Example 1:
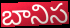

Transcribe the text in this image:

బానిస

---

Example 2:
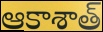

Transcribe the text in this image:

ఆకాశాత్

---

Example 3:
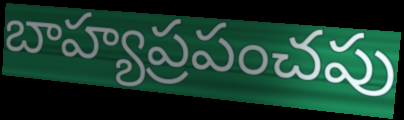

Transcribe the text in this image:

బాహ్యప్రపంచపు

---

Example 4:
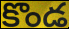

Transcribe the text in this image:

కొండ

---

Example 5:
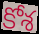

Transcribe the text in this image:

కోశ